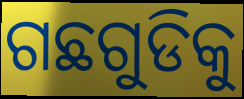
ଗଛଗୁଡିକୁ